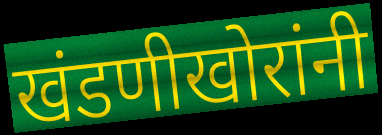
खंडणीखोरांनी